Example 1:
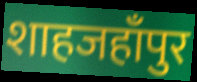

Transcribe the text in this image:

शाहजहाँपुर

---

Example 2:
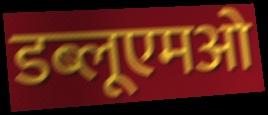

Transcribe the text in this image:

डब्लूएमओ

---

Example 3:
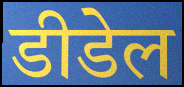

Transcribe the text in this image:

डीडेल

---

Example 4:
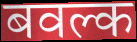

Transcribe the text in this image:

बवल्क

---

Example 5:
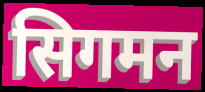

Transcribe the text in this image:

सिगमन